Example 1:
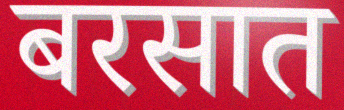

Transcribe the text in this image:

बरसात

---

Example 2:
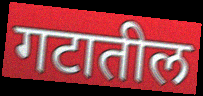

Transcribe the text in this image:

गटातील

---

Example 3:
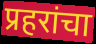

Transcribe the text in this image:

प्रहरांचा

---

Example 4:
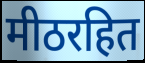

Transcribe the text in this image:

मीठरहित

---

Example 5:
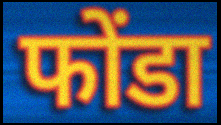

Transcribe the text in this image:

फोंडा